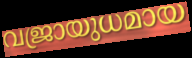
വജ്രായുധമായ